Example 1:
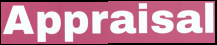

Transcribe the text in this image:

Appraisal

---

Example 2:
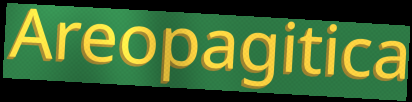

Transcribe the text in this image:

Areopagitica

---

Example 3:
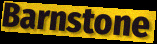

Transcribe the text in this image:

Barnstone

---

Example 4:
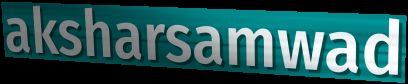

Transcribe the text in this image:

aksharsamwad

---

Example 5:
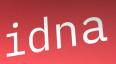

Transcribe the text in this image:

idna